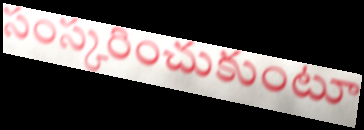
సంస్కరించుకుంటూ